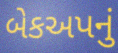
બેકઅપનું